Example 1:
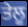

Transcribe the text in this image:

ਤੇਲੂ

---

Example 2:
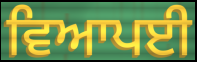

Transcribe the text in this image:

ਵਿਆਪਈ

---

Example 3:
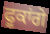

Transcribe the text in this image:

ਫੂਕਾਂਗੇ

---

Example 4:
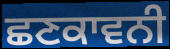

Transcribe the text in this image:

ਛਣਕਾਵਨੀ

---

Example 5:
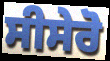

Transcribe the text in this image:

ਸੀਸੇਰੋ